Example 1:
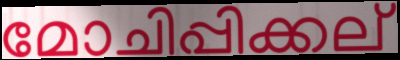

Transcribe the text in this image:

മോചിപ്പിക്കല്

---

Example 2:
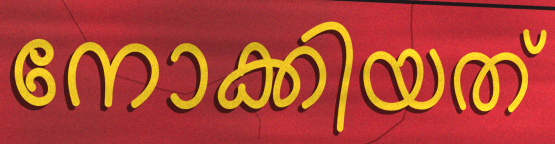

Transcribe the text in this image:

നോക്കിയത്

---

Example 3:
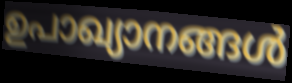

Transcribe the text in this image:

ഉപാഖ്യാനങ്ങൾ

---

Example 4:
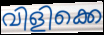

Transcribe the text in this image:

വിളിക്കെ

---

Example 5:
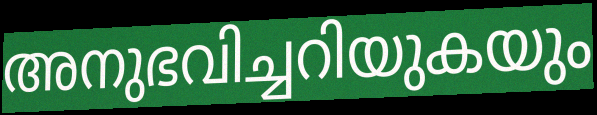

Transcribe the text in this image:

അനുഭവിച്ചറിയുകയും